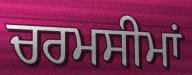
ਚਰਮਸੀਮਾਂ